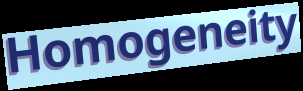
Homogeneity